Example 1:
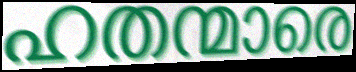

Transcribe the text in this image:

ഹതന്മാരെ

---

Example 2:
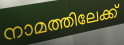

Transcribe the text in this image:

നാമത്തിലേക്ക്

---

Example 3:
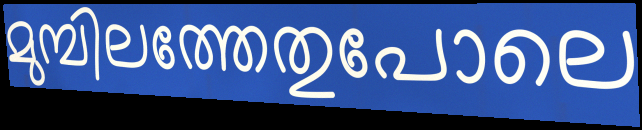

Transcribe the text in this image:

മുമ്പിലത്തേതുപോലെ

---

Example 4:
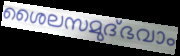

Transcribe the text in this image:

ശൈലസമുദ്ഭവാം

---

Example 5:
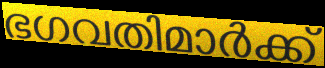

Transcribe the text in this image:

ഭഗവതിമാർക്ക്